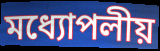
মধ্যোপলীয়